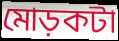
মোড়কটা